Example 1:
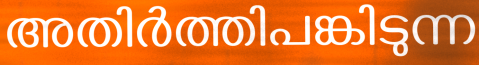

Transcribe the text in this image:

അതിർത്തിപങ്കിടുന്ന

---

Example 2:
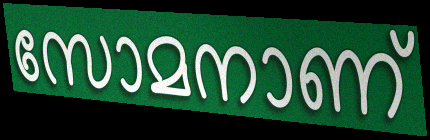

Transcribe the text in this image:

സോമനാണ്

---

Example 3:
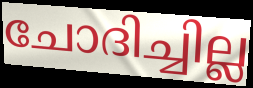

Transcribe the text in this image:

ചോദിച്ചില്ല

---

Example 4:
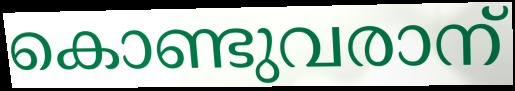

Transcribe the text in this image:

കൊണ്ടുവരാന്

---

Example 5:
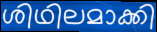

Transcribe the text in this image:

ശിഥിലമാക്കി